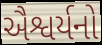
ઐશ્વર્યનો